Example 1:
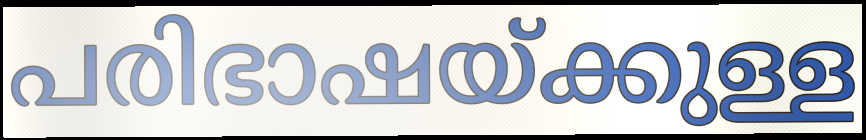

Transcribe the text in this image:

പരിഭാഷയ്ക്കുള്ള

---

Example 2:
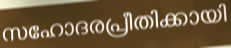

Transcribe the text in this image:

സഹോദരപ്രീതിക്കായി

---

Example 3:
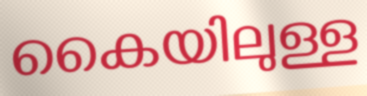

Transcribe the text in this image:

കൈയിലുള്ള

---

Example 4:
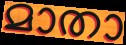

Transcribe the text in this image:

മാതാ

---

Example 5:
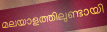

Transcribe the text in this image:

മലയാളത്തിലുണ്ടായി